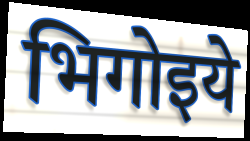
भिगोइये